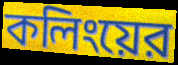
কলিংয়ের